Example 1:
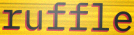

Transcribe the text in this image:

ruffle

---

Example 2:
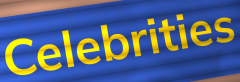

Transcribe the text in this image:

Celebrities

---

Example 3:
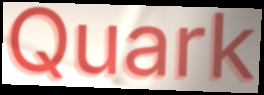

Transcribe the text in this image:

Quark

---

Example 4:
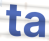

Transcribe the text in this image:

ta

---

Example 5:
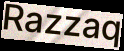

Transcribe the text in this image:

Razzaq